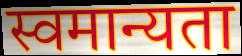
स्वमान्यता